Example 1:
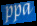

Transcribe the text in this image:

ppa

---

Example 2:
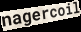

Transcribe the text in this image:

nagercoil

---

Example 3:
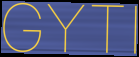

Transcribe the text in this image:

GYTI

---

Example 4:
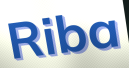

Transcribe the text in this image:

Riba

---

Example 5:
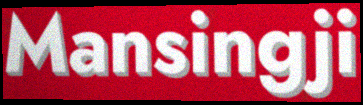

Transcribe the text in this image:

Mansingji